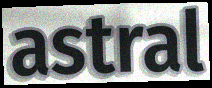
astral